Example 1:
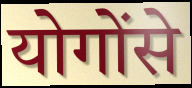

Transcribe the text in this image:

योगोंसे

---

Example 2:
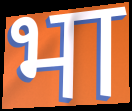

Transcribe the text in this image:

भा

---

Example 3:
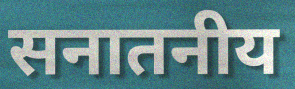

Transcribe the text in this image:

सनातनीय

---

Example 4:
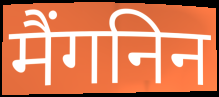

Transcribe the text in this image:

मैंगनिन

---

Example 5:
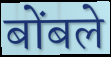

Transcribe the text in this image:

बोंबले